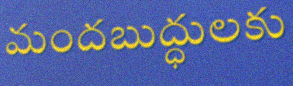
మందబుద్ధులకు